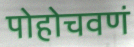
पोहोचवणं